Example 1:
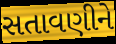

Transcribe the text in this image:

સતાવણીને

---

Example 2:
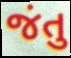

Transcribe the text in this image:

જંતુ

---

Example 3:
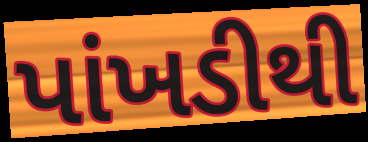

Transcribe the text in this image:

પાંખડીથી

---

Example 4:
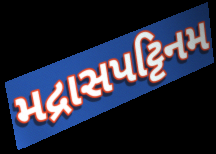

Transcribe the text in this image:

મદ્રાસપટ્ટિનમ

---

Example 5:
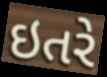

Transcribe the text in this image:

ઇતરે